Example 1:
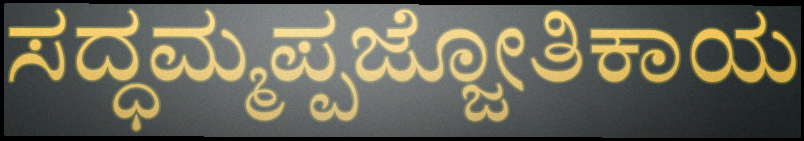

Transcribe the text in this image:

ಸದ್ಧಮ್ಮಪ್ಪಜ್ಜೋತಿಕಾಯ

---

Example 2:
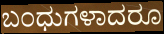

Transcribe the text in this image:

ಬಂಧುಗಳಾದರೂ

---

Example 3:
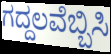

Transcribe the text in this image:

ಗದ್ದಲವೆಬ್ಬಿಸಿ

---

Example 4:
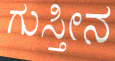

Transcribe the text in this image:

ಗುಸ್ತೀನ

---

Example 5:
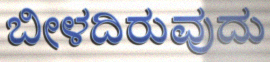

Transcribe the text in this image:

ಬೀಳದಿರುವುದು